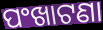
ପଂଖାଟଣା